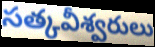
సత్కవీశ్వరులు